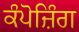
ਕੰਪੋਜ਼ਿੰਗ